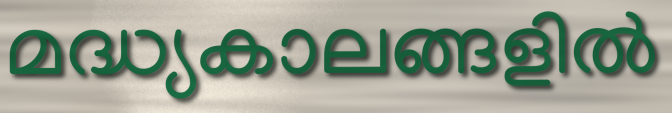
മദ്ധ്യകാലങ്ങളിൽ